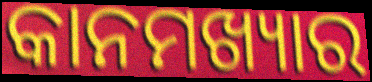
କାନମଖ୍ୟାର